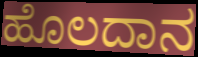
ಹೊಲದಾನ